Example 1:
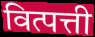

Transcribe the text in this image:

वित्पत्ती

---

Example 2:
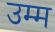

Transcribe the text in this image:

उम्म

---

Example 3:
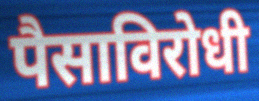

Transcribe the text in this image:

पैसाविरोधी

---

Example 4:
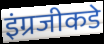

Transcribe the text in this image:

इंग्रजीकडे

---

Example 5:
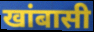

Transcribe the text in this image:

खांबासी